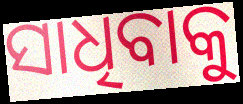
ସାଧିବାକୁ